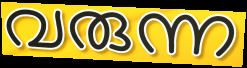
വരുന്ന